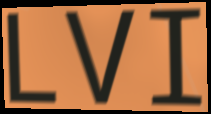
LVI